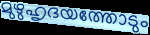
മുഴുഹൃദയത്തോടും